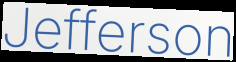
Jefferson